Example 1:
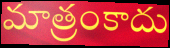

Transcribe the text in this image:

మాత్రంకాదు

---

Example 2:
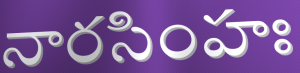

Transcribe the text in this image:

నారసింహః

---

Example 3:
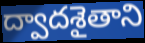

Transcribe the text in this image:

ద్వాదశైతాని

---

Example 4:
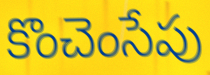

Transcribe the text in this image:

కొంచెంసేపు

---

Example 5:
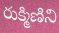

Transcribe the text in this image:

రుక్మిణిని